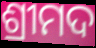
ଶ୍ରୀମଦ